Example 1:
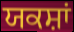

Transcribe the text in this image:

ਯਕਸ਼ਾਂ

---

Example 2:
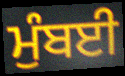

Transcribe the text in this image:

ਮੁੰਬਈ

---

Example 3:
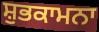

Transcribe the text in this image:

ਸ਼ੁਭਕਾਮਨਾ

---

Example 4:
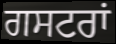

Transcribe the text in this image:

ਗਸਟਰਾਂ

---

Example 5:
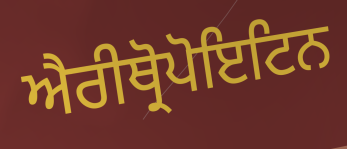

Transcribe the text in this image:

ਐਰੀਥ੍ਰੋਪੋਇਟਿਨ